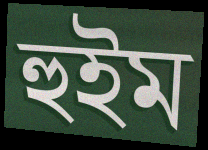
হুইম